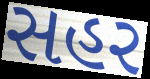
સહર